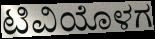
ಟಿವಿಯೊಳಗ